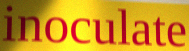
inoculate